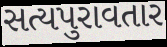
સત્યપુરાવતાર